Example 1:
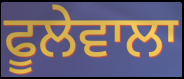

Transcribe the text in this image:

ਫੂਲੇਵਾਲਾ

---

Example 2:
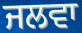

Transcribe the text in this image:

ਜਲਵਾ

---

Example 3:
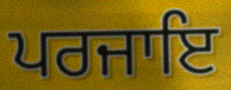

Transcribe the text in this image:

ਪਰਜਾਇ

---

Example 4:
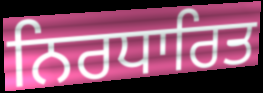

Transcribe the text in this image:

ਨਿਰਧਾਰਿਤ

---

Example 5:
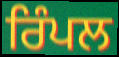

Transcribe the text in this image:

ਰਿੰਪਲ